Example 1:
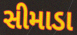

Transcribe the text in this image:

સીમાડા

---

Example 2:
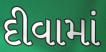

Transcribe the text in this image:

દીવામાં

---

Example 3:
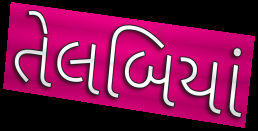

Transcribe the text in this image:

તેલબિયાં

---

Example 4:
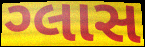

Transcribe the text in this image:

ગ્લાસ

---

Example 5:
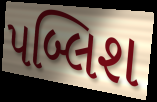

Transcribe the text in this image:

પબ્લિશ